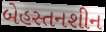
બેહસ્તનશીન